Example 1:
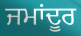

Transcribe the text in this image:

ਜਮਾਂਦੂਰ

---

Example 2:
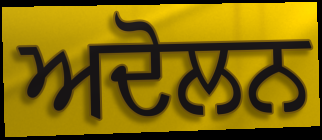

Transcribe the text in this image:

ਅਦੋਲਨ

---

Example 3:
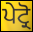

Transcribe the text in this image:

ਪੇਟ੍ਰੋ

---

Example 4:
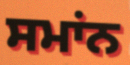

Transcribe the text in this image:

ਸਮਾਂਨ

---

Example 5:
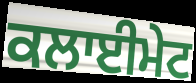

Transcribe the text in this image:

ਕਲਾਈਮੇਟ